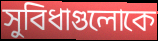
সুবিধাগুলোকে